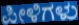
ಪೀಳಿಗಳು